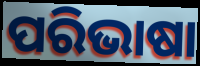
ପରିଭାଷା